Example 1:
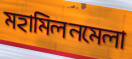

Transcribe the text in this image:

মহামিলনমেলা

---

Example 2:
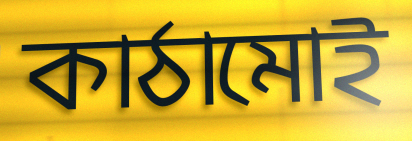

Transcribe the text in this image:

কাঠামোই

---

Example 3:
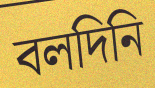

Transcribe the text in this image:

বলদিনি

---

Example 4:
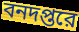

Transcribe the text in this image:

বনদপ্তরে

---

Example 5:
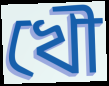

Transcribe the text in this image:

খৌ